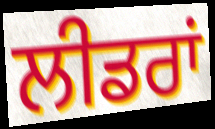
ਲੀਡਰਾਂ